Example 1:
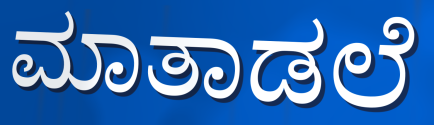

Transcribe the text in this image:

ಮಾತಾಡಲೆ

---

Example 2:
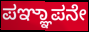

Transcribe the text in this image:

ಪಞ್ಞಾಪನೇ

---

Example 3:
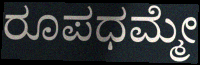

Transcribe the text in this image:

ರೂಪಧಮ್ಮೇ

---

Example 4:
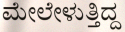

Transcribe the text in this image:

ಮೇಲೇಳುತ್ತಿದ್ದ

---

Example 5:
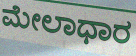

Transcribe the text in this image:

ಮೇಲಾಧಾರ